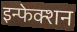
इन्फेक्शन